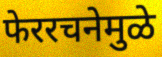
फेररचनेमुळे